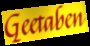
Geetaben